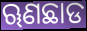
ୠଣଛାଡ